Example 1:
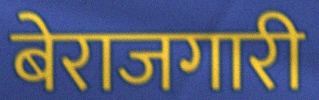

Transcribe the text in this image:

बेराजगारी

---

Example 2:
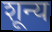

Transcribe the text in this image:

शून्य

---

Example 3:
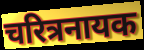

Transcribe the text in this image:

चरित्रनायक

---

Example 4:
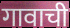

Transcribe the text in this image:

गावाची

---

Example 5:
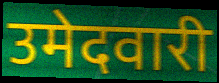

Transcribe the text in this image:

उमेदवारी